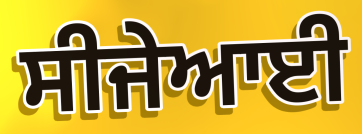
ਸੀਜੇਆਈ